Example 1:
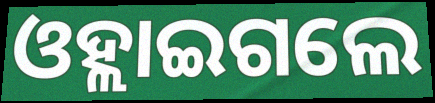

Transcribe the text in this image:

ଓହ୍ଲାଇଗଲେ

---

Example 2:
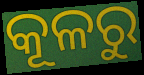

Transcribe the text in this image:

କୂଳରୁ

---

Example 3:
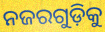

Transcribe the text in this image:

ନଜରଗୁଡ଼ିକୁ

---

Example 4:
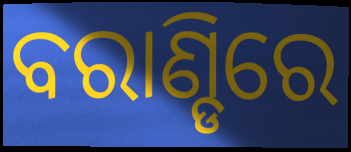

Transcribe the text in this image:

ବରାଣ୍ଡିରେ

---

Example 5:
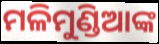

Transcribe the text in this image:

ମଳିମୁଣ୍ଡିଆଙ୍କ